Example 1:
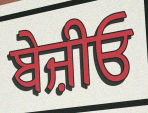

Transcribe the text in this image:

ਬੇਜ਼ੀਓ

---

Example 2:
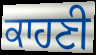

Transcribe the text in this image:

ਕਾਹਣੀ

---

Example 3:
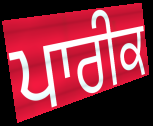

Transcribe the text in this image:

ਪਾਰੀਕ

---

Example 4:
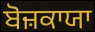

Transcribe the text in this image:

ਬੋਜ਼ਕਾਯਾ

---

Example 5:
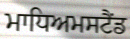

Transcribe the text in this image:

ਮਾਧਿਅਮਸਟੈਂਡ